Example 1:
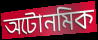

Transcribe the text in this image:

অটোনমিক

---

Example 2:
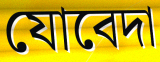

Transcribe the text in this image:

যোবেদা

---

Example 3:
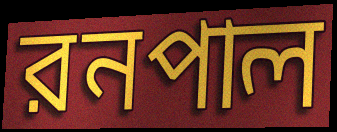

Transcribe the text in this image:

রনপাল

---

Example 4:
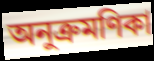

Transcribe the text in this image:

অনুক্রমণিকা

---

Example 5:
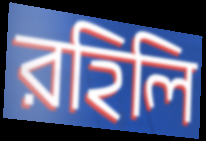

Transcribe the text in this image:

রহিলি